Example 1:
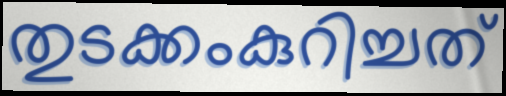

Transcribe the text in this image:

തുടക്കംകുറിച്ചത്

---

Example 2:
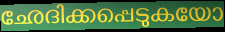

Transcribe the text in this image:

ഛേദിക്കപ്പെടുകയോ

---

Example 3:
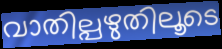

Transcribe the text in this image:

വാതില്പഴുതിലൂടെ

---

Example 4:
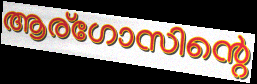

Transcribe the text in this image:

ആര്ഗോസിന്റെ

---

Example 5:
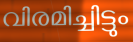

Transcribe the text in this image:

വിരമിച്ചിട്ടും